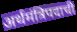
अर्थमंत्रिपदाची